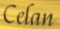
Celan